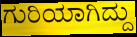
ಗುರಿಯಾಗಿದ್ದು